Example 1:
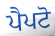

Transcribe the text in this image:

ਪੈਪਟੋ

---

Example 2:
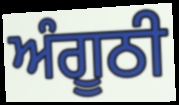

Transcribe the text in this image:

ਅੰਗੂਠੀ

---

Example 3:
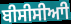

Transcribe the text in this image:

ਬੀਸੀਸੀਆੀ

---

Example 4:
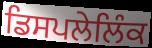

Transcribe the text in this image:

ਡਿਸਪਲੇਲਿੰਕ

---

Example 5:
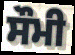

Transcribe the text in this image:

ਸੌਮੀ